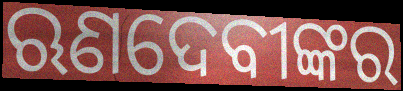
ଋଣଦେବୀଙ୍କର